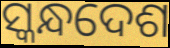
ସ୍କନ୍ଧଦେଶ